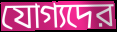
যোগ্যদের